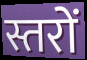
स्तरों